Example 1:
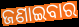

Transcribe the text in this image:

ଜଣାଇବାର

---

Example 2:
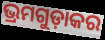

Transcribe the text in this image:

ଭ୍ରମଗୁଡ଼ାକର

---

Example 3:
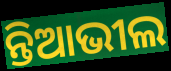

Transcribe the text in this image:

ନ୍ତିଆଭୀଲ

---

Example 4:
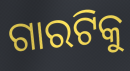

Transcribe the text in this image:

ଗାରଟିକୁ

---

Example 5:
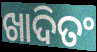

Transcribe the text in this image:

ଖାଦିତଂ